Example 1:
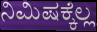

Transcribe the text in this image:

ನಿಮಿಷಕ್ಕೆಲ್ಲ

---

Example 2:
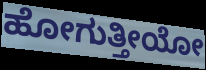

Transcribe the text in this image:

ಹೋಗುತ್ತೀಯೋ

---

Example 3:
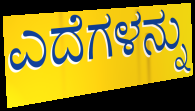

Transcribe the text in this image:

ಎದೆಗಳನ್ನು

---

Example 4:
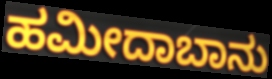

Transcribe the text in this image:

ಹಮೀದಾಬಾನು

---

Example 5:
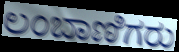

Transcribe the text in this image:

ಲಂಬಾಣಿಗರು